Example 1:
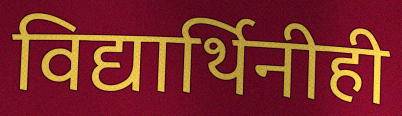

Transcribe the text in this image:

विद्यार्थिनीही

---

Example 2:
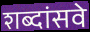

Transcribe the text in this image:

शब्दांसवे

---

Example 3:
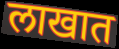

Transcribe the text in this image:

लाखात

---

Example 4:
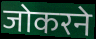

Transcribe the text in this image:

जोकरने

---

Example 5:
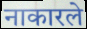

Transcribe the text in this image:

नाकारले